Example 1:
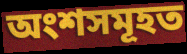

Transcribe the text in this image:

অংশসমূহত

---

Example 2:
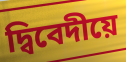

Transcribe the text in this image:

দ্বিবেদীয়ে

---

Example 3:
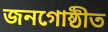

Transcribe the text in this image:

জনগোষ্ঠীত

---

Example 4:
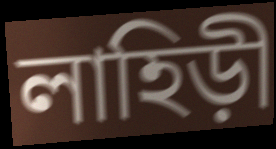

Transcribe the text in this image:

লাহিড়ী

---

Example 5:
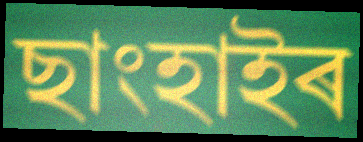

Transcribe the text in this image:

ছাংহাইৰ